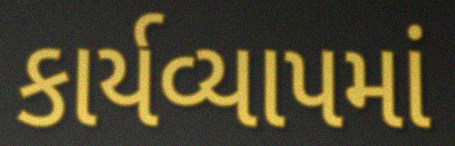
કાર્યવ્યાપમાં